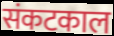
संकटकाल